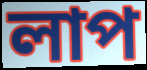
লাপ